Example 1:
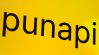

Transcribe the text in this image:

punapi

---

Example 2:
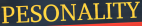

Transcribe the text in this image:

PESONALITY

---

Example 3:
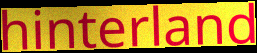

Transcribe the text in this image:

hinterland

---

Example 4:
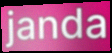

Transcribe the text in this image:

janda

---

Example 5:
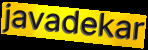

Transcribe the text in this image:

javadekar